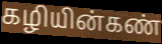
கழியின்கண்